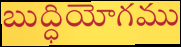
బుద్ధియోగము